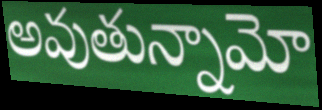
అవుతున్నామో